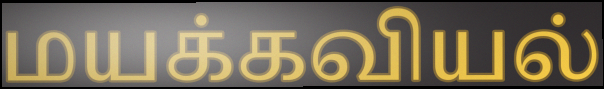
மயக்கவியல்